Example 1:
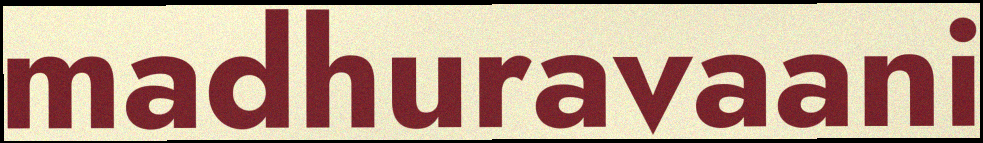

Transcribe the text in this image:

madhuravaani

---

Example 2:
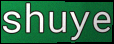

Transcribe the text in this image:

shuye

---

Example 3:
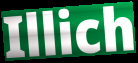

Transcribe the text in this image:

Illich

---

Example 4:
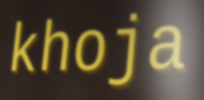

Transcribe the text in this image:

khoja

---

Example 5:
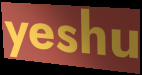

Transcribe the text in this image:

yeshu